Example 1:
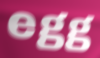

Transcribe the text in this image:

egg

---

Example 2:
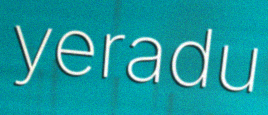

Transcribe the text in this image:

yeradu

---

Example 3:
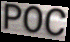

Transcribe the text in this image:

POC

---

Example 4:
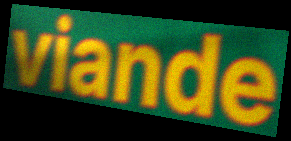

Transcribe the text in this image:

viande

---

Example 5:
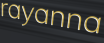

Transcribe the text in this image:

rayanna